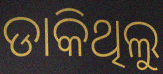
ଡାକିଥିଲୁ